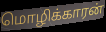
மொழிக்காரன்